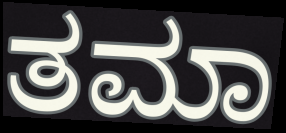
ತಮಾ